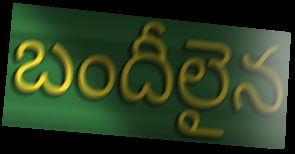
బందీలైన